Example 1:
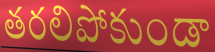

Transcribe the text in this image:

తరలిపోకుండా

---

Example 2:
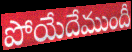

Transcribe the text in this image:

పోయేదేముందీ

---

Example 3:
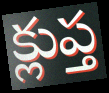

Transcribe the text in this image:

క్లుప్త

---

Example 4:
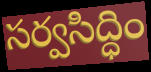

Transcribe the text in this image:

సర్వసిద్ధిం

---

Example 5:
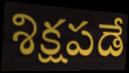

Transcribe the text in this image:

శిక్షపడే